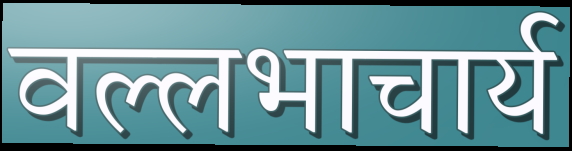
वल्‍लभाचार्य